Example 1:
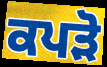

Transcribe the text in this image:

ਕਪੜੋ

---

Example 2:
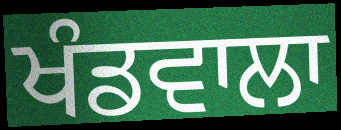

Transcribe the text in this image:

ਖੰਡਵਾਲਾ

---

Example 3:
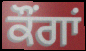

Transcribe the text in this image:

ਕੌਂਗਾਂ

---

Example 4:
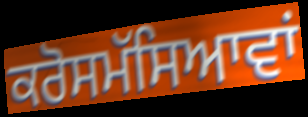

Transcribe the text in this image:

ਕਰੋਸਮੱਸਿਆਵਾਂ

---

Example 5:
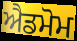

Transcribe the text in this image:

ਐਡਮੋਮ